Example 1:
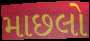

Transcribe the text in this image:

માછલો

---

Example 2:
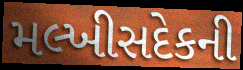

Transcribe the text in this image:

મલ્ખીસદેકની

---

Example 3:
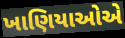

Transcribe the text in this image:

ખાણિયાઓએ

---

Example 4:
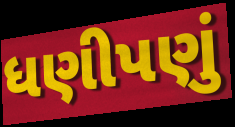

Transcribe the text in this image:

ધણીપણું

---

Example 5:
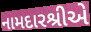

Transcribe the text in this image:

નામદારશ્રીએ